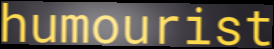
humourist